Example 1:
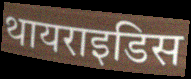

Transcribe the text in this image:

थायराइडिस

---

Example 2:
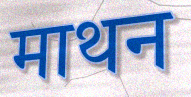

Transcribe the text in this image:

माथन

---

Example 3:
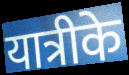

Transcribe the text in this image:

यात्रीके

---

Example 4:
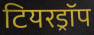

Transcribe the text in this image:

टियरड्रॉप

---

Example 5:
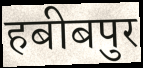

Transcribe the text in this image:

हबीबपुर